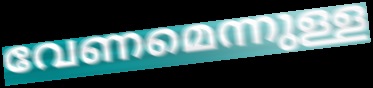
വേണമെന്നുള്ള